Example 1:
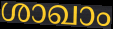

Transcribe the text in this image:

ശാഖാം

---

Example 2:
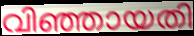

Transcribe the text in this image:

വിഞ്ഞായതി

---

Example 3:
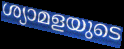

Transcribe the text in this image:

ശ്യാമളയുടെ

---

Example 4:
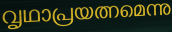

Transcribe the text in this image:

വൃഥാപ്രയത്നമെന്നു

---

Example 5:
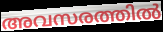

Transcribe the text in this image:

അവസരത്തിൽ